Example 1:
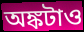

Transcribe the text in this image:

অঙ্কটাও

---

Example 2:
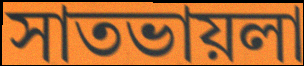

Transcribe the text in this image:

সাতভায়লা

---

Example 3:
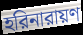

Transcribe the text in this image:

হরিনারায়ণ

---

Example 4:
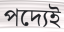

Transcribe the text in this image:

পদ্যেই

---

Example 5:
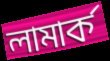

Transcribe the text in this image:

লামার্ক